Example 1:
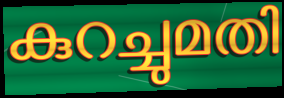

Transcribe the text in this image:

കുറച്ചുമതി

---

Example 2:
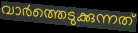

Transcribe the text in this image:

വാർത്തെടുക്കുന്നത്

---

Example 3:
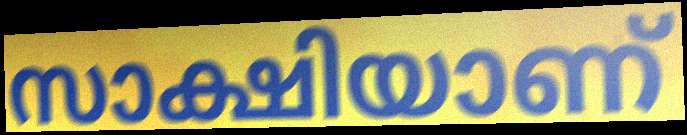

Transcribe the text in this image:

സാക്ഷിയാണ്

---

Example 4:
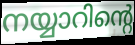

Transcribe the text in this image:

നയ്യാറിന്റെ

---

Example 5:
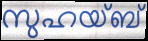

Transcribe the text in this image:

സുഹയ്ബ്